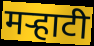
मर्‍हाटी